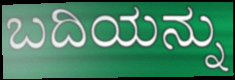
ಬದಿಯನ್ನು